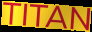
TITAN